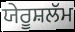
ਯੇਰੂਸ਼ਲੱਮ